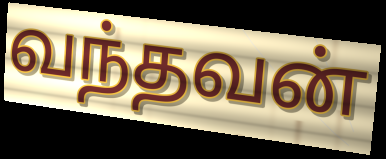
வந்தவன்